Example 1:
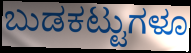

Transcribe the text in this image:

ಬುಡಕಟ್ಟುಗಳೂ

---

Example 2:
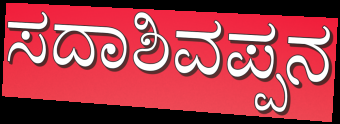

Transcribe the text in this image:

ಸದಾಶಿವಪ್ಪನ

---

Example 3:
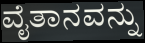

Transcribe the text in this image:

ವೈತಾನವನ್ನು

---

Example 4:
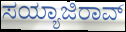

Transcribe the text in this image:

ಸಯ್ಯಾಜಿರಾವ್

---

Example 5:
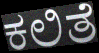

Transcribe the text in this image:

ಕಲಿತೆ